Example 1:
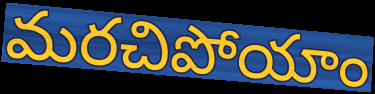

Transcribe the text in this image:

మరచిపోయాం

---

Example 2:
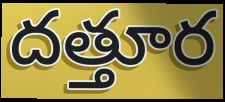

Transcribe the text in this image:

దత్తూర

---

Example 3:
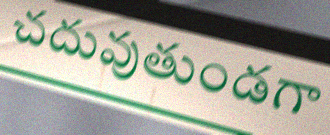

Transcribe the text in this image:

చదువుతుండగా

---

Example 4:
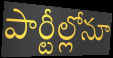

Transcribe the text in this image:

పార్టీల్లోనూ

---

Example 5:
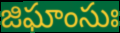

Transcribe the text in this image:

జిఘాంసుః